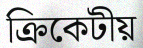
ক্রিকেটীয়